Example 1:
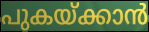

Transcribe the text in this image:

പുകയ്ക്കാൻ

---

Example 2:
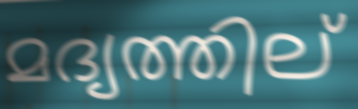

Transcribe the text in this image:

മദ്യത്തില്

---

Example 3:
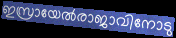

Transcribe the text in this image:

ഇസ്രായേൽരാജാവിനോടു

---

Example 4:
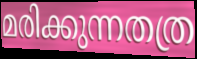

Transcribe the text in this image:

മരിക്കുന്നതത്ര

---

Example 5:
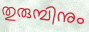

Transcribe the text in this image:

തുരുമ്പിനും